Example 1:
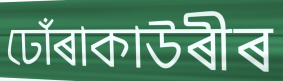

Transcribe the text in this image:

ঢোঁৰাকাউৰীৰ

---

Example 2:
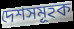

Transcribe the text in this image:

দেশসমূহক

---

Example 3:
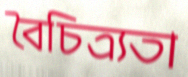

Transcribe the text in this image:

বৈচিত্ৰ্যতা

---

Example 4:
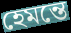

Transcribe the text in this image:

হেমন্তে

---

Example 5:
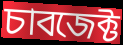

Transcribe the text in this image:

চাবজেক্ট